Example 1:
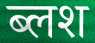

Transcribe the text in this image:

ब्लश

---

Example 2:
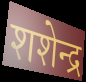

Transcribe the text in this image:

शशेन्द्र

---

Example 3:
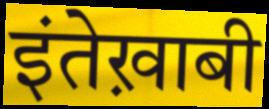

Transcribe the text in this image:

इंतेख़ाबी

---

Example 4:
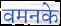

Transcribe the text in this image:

वमनके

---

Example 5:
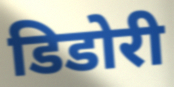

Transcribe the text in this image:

डिडोरी